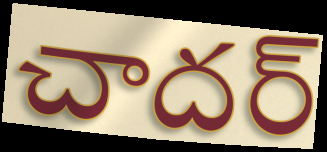
చాదర్